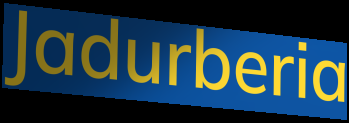
Jadurberia